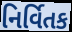
નિર્વિતક